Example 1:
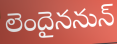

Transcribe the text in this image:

లెందైననున్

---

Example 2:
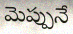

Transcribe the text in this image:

మెప్పునే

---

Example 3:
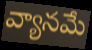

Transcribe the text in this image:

వ్యానమే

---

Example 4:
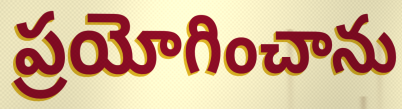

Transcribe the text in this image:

ప్రయోగించాను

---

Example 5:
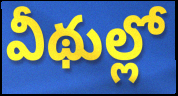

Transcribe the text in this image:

వీథుల్లో